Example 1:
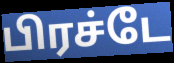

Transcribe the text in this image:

பிரச்டே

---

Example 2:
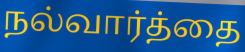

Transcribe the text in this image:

நல்வார்த்தை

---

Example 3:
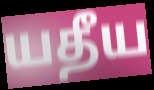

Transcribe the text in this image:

யதீய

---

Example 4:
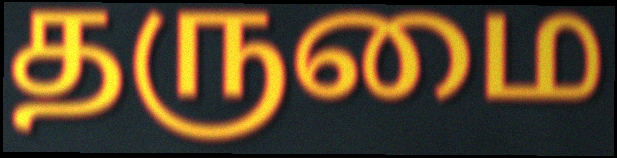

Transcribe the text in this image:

தருமை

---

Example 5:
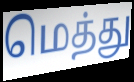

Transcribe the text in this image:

மெத்து